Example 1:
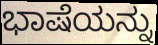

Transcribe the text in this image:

ಭಾಷೆಯನ್ನು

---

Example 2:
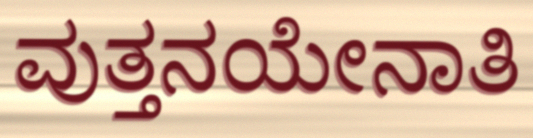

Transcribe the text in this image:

ವುತ್ತನಯೇನಾತಿ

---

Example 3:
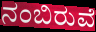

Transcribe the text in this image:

ನಂಬಿರುವೆ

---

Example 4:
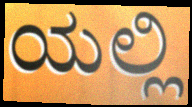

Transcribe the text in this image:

ಯಲ್ಲಿ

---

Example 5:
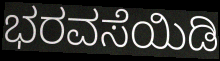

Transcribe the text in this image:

ಭರವಸೆಯಿಡಿ